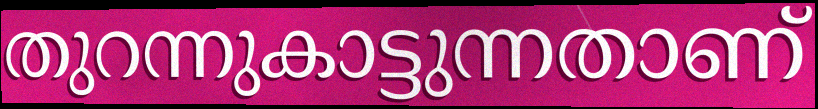
തുറന്നുകാട്ടുന്നതാണ്